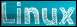
Linux